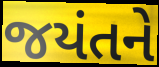
જયંતને